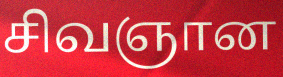
சிவஞான